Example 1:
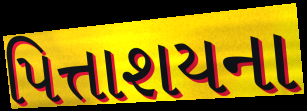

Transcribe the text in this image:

પિત્તાશયના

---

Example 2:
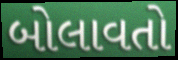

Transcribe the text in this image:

બોલાવતો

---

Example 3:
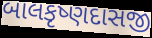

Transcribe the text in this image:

બાલકૃષ્ણદાસજી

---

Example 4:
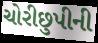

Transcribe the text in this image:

ચોરીછુપીની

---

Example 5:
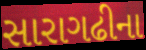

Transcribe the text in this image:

સારાગઢીના